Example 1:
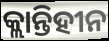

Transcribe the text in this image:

କ୍ଲାନ୍ତିହୀନ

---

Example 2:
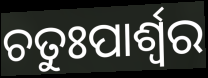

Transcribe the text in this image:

ଚତୁଃପାର୍ଶ୍ଵର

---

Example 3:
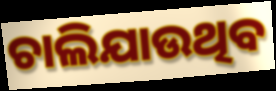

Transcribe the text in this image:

ଚାଲିଯାଉଥିବ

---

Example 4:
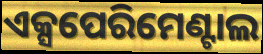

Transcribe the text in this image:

ଏକ୍ସପେରିମେଣ୍ଟାଲ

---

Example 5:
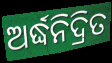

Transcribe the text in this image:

ଅର୍ଦ୍ଧନିଦ୍ରିତ